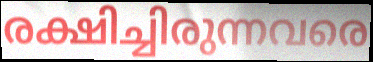
രക്ഷിച്ചിരുന്നവരെ